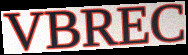
VBREC